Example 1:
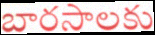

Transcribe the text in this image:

బారసాలకు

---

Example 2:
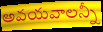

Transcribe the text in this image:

అవయవాలన్నీ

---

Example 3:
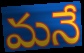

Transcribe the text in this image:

మనే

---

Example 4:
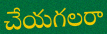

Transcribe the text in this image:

చేయగలరా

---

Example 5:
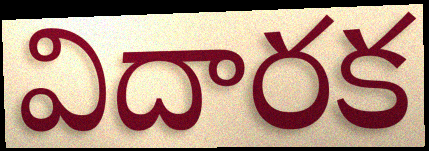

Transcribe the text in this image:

విదారక